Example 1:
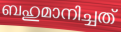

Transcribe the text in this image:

ബഹുമാനിച്ചത്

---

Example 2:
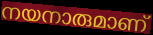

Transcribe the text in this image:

നയനാരുമാണ്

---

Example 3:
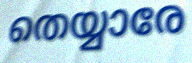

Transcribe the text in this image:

തെയ്യാരേ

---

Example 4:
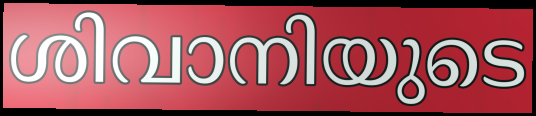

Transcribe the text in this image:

ശിവാനിയുടെ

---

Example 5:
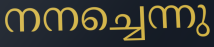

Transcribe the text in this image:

നനച്ചെന്നു